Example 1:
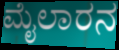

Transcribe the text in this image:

ಮೈಲಾರನ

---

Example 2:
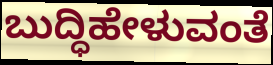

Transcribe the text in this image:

ಬುದ್ಧಿಹೇಳುವಂತೆ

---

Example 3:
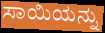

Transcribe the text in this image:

ಸಾಯಿಯನ್ನು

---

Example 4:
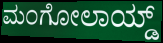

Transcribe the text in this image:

ಮಂಗೋಲಾಯ್ಡ್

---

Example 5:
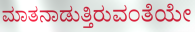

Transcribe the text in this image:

ಮಾತನಾಡುತ್ತಿರುವಂತೆಯೇ